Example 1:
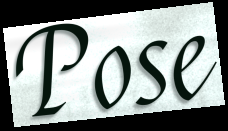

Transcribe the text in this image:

Pose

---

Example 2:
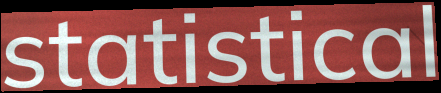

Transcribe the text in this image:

statistical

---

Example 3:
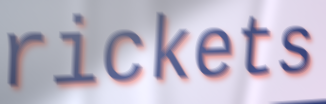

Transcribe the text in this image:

rickets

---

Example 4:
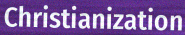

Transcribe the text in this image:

Christianization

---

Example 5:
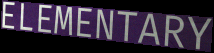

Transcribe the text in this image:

ELEMENTARY